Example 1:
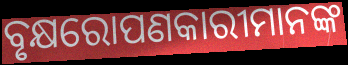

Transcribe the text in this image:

ବୃକ୍ଷରୋପଣକାରୀମାନଙ୍କ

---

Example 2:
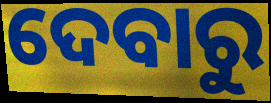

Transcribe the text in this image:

ଦେବାରୁ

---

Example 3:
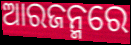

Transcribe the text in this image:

ଆରଜନ୍ମରେ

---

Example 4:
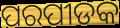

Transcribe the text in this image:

ପରପୀଡକ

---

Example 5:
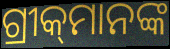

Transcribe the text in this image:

ଗ୍ରୀକ୍‌ମାନଙ୍କ